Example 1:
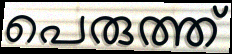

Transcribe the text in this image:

പെരുത്ത്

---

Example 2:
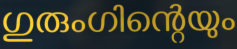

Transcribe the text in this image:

ഗുരുംഗിന്റെയും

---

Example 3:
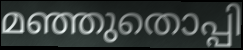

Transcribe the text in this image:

മഞ്ഞുതൊപ്പി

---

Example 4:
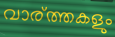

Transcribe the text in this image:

വാര്ത്തകളും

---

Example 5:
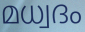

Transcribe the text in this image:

മധ്വദം